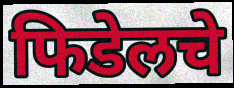
फिडेलचे